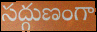
సద్గుణంగా